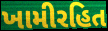
ખામીરહિત